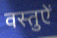
वस्तुऐं